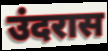
उंदरास